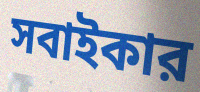
সবাইকার